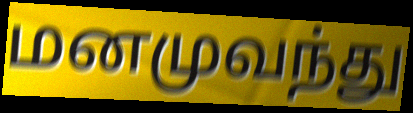
மனமுவந்து